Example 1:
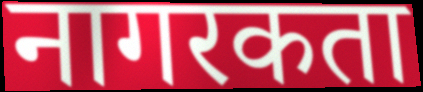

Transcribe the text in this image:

नागरकता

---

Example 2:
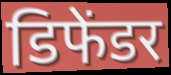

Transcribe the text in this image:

डिफेंडर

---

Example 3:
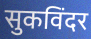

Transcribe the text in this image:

सुकविंदर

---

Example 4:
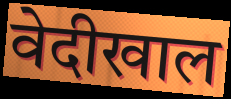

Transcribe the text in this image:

वेदीखाल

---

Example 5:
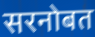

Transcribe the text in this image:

सरनोबत